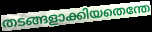
തടങ്ങളാക്കിയതെന്തേ